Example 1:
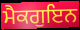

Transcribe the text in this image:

ਮੈਕਗੁਇਨ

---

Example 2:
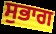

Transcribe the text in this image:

ਸੁਭਾਗ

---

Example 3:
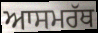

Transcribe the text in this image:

ਆਸਮਰੱਥ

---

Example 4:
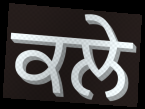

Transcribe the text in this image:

ਕਲੇ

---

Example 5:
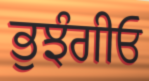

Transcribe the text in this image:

ਭੁਝੰਗੀਓ